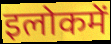
इलोकमें